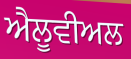
ਐਲੂਵੀਅਲ